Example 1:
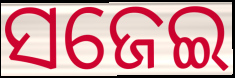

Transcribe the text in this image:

ସଜେଇ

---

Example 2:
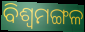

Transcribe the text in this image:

ବିଶ୍ୱମଙ୍ଗଳ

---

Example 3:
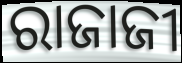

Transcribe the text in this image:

ରାଜାଜୀ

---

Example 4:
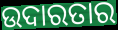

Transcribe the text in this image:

ଉଦାରତାର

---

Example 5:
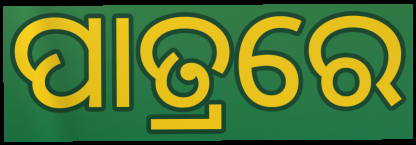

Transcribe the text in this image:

ପାତ୍ରରେ